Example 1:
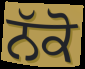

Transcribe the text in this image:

ਨੱਕੋ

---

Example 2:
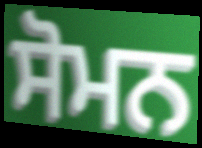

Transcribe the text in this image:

ਸੋਮਨ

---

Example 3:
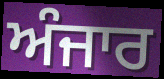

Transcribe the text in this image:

ਅੰਜਾਰ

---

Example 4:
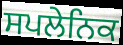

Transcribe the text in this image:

ਸਪਲੇਨਿਕ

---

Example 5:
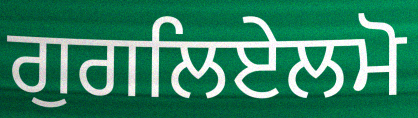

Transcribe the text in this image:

ਗੁਗਲਿਏਲਮੋ